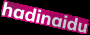
hadinaidu